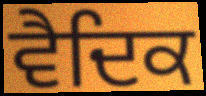
ਵੈਦਿਕ